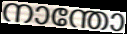
നാന്തോ